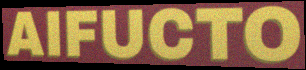
AIFUCTO